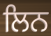
ਲਿਨ